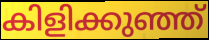
കിളിക്കുഞ്ഞ്